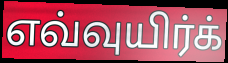
எவ்வுயிர்க்